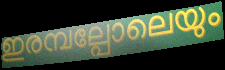
ഇരമ്പല്പോലെയും